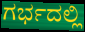
ಗರ್ಭದಲ್ಲಿ